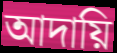
আদায়ি